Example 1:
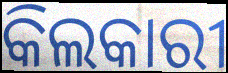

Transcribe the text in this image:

କିଲକାରୀ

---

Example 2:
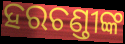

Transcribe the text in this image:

ହରଚଣ୍ଡୀଙ୍କ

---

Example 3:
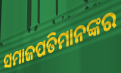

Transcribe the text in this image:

ସମାଜପତିମାନଙ୍କର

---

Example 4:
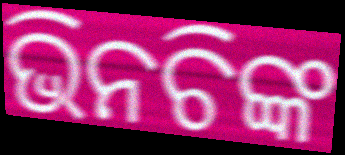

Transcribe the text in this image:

ଭିନଚିଙ୍କ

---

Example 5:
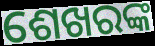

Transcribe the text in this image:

ଶେଖରଙ୍କ